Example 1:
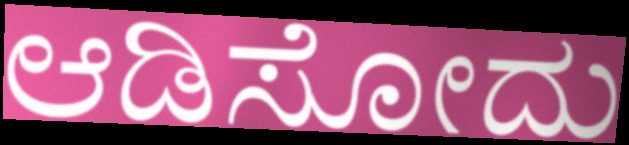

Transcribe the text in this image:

ಆಡಿಸೋದು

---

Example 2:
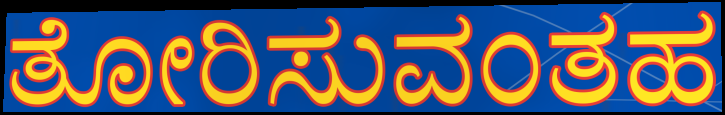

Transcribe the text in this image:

ತೋರಿಸುವಂತಹ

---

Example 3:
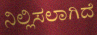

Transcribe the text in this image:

ನಿಲ್ಲಿಸಲಾಗಿದೆ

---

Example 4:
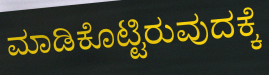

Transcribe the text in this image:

ಮಾಡಿಕೊಟ್ಟಿರುವುದಕ್ಕೆ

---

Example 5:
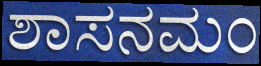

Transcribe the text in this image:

ಶಾಸನಮಂ